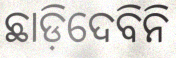
ଛାଡ଼ିଦେବିନି